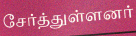
சேர்த்துள்ளனர்